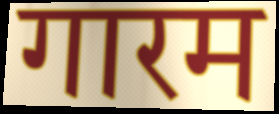
गारम